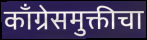
काँग्रेसमुक्तीचा